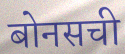
बोनसची